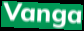
Vanga